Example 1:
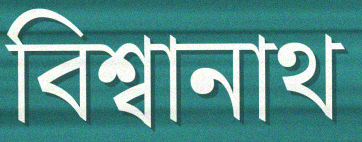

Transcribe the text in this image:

বিশ্বানাথ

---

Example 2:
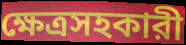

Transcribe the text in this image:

ক্ষেত্রসহকারী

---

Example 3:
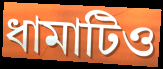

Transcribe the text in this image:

ধামাটিও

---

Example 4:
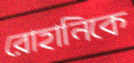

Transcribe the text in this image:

রোহানিকে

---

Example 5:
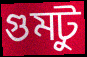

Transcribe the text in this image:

গুমটু